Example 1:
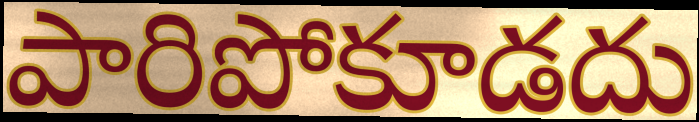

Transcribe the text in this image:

పారిపోకూడదు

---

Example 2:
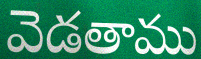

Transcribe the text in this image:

వెడతాము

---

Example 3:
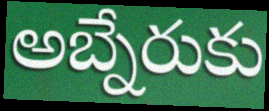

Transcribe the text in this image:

అబ్నేరుకు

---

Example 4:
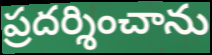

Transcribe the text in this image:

ప్రదర్శించాను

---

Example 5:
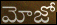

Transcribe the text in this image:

మోజో